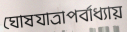
ঘোষযাত্রাপর্বাধ্যায়